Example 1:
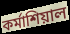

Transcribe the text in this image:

কর্মাশিয়াল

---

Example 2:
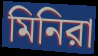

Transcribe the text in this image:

মিনিরা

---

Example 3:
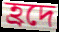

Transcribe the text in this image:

হ্রদে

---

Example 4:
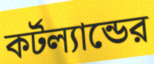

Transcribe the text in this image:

কর্টল্যান্ডের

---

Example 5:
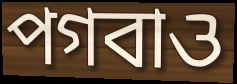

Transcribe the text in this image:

পগবাও